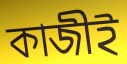
কাজীই